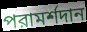
পরামর্শদান